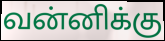
வன்னிக்கு